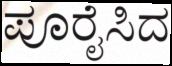
ಪೂರೈಸಿದ